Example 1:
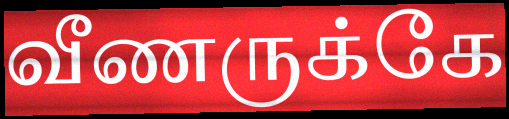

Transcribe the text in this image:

வீணருக்கே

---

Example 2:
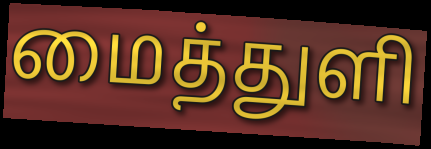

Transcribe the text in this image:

மைத்துளி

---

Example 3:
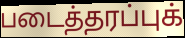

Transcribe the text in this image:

படைத்தரப்புக்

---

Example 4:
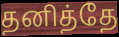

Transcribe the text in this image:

தனித்தே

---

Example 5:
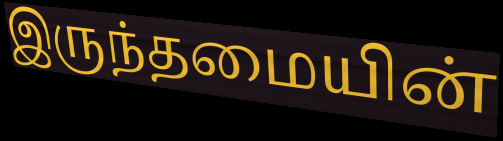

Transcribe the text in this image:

இருந்தமையின்